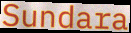
Sundara